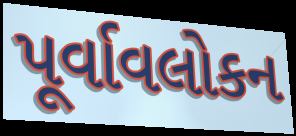
પૂર્વાવલોકન